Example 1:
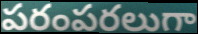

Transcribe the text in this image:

పరంపరలుగా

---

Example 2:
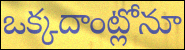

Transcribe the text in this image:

ఒక్కదాంట్లోనూ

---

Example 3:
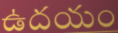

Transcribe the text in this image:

ఉదయం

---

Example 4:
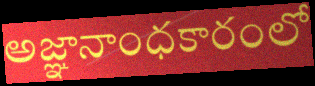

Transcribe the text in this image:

అజ్ఞానాంధకారంలో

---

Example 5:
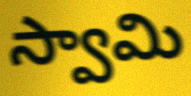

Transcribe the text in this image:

స్వామి